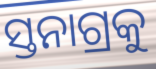
ସ୍ତନାଗ୍ରକୁ